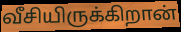
வீசியிருக்கிறான்